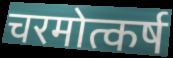
चरमोत्कर्ष